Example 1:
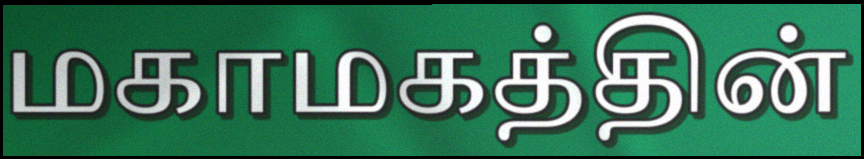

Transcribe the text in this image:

மகாமகத்தின்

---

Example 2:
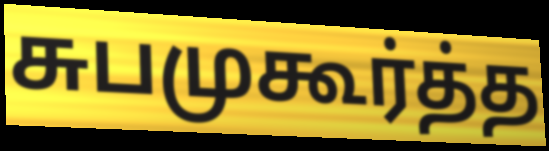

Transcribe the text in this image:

சுபமுகூர்த்த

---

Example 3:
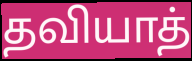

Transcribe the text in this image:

தவியாத்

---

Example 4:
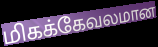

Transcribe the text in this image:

மிகக்கேவலமான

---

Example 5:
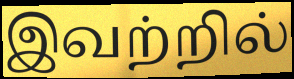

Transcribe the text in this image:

இவற்றில்